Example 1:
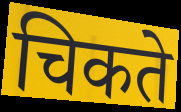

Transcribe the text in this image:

चिकते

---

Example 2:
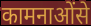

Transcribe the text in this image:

कामनाओंसे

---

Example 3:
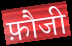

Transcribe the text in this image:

फ़ौजी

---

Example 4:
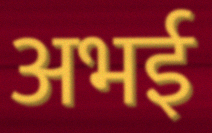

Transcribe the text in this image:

अभई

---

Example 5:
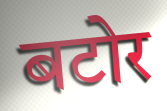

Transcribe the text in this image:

बटोर